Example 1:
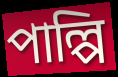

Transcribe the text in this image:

পাল্পি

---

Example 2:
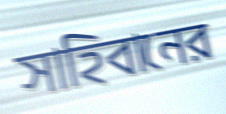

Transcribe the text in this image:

সাহিবানের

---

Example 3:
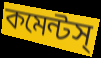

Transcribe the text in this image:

কমেন্টস্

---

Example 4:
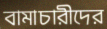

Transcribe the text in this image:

বামাচারীদের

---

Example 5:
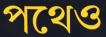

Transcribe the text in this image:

পথেও